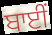
ਬਾਈਂ